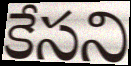
కేసని